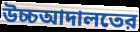
উচ্চআদালতের